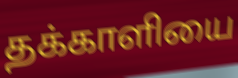
தக்காளியை